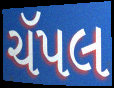
ચૅપલ